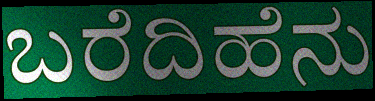
ಬರೆದಿಹೆನು